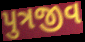
પુત્રજીવ